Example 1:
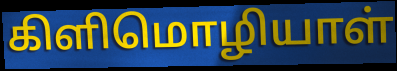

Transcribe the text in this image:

கிளிமொழியாள்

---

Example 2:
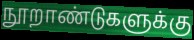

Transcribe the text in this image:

நூறாண்டுகளுக்கு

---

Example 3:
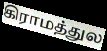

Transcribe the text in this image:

கிராமத்துல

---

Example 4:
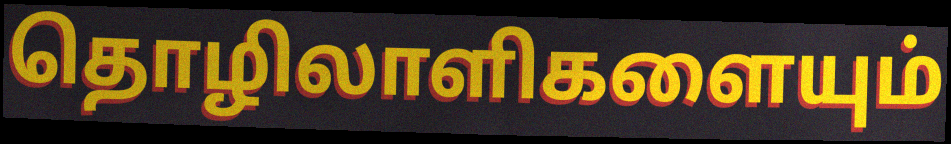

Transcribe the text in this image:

தொழிலாளிகளையும்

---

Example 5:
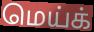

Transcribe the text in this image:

மெய்க்